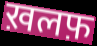
ख़लफ़